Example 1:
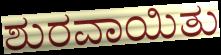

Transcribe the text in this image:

ಶುರವಾಯಿತು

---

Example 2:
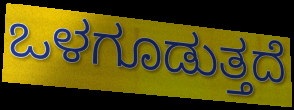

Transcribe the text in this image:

ಒಳಗೂಡುತ್ತದೆ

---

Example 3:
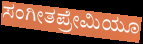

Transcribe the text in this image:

ಸಂಗೀತಪ್ರೇಮಿಯೂ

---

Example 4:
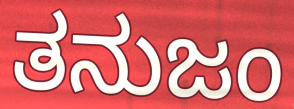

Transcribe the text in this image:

ತನುಜಂ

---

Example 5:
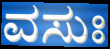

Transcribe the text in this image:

ವಸುಃ